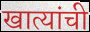
खात्यांची